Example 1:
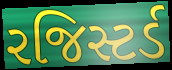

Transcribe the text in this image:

રજિસ્ટર્ડ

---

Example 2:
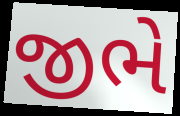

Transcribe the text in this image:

જીભે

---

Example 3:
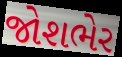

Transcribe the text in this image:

જોશભેર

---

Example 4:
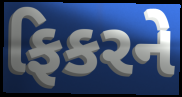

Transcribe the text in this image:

ફિકરને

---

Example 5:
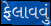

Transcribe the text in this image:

ફેલાવવું